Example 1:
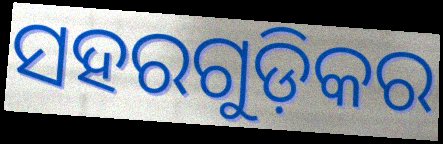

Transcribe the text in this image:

ସହରଗୁଡ଼ିକର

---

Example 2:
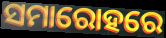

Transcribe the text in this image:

ସମାରୋହରେ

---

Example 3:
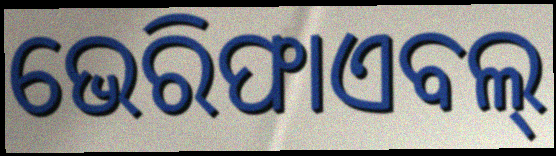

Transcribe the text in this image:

ଭେରିଫାଏବଲ୍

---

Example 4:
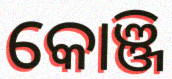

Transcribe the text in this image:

କୋଞ୍ଜି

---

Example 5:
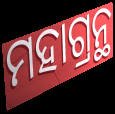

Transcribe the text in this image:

ମହାଗ୍ରନ୍ଥ